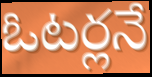
ఓటర్లనే